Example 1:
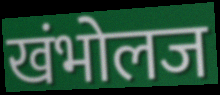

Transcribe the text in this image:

खंभोलज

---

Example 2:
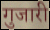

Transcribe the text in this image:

गुजारी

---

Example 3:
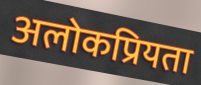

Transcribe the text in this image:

अलोकप्रियता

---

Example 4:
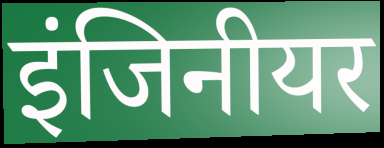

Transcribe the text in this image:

इंजिनीयर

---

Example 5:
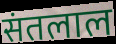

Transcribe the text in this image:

संतलाल